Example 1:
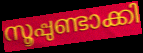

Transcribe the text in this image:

സൂപ്പുണ്ടാക്കി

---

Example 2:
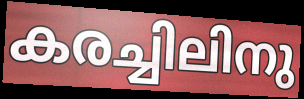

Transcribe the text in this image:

കരച്ചിലിനു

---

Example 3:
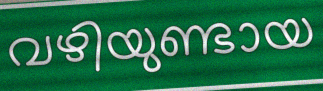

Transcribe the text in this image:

വഴിയുണ്ടായ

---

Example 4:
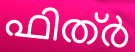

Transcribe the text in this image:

ഫിത്ർ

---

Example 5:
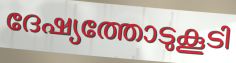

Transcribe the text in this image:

ദേഷ്യത്തോടുകൂടി